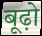
बूढ़ो